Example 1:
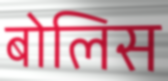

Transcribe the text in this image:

बोलिस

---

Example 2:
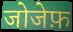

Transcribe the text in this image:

जोजेफ़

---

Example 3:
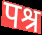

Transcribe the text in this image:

पश्र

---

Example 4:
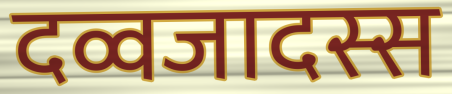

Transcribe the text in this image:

दव्वजादस्स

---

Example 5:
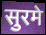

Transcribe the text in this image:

सुरमे